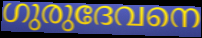
ഗുരുദേവനെ